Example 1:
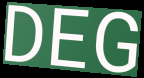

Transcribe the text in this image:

DEG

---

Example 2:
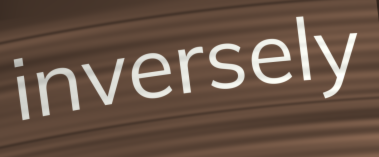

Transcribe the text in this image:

inversely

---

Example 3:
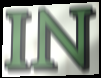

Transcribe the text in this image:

IN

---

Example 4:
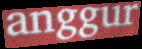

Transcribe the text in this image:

anggur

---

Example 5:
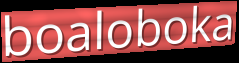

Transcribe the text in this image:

boaloboka